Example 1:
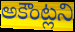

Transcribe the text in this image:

అకౌంట్లని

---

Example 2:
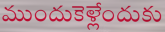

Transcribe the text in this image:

ముందుకెళ్లేందుకు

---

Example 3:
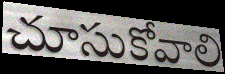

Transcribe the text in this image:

చూసుకోవాలి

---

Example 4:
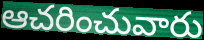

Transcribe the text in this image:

ఆచరించువారు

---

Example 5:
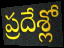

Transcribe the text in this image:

ప్రదేశ్లో